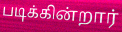
படிக்கின்றார்